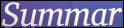
Summar